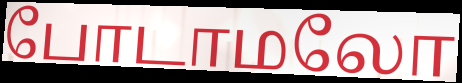
போடாமலோ